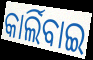
କାର୍ଲିବାଇ